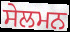
ਸੇਲਮਨ